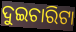
ଦୁଇଚାରିଟା